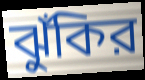
ঝুঁকির